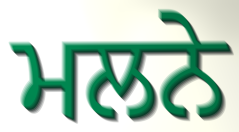
ਮਲਨੇ